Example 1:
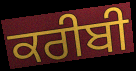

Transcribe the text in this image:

ਕਰੀਬੀ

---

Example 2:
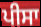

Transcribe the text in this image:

ਪੀਸਾ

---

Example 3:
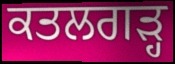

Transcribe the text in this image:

ਕਤਲਗੜ੍ਹ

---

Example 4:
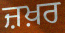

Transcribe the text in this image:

ਜ਼ਖ਼ਰ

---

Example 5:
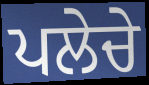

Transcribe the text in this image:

ਪਲੇਚੇ